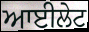
ਆਈਲੇਟ